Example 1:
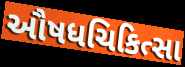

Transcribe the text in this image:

ઔષધચિકિત્સા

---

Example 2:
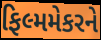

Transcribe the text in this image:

ફિલ્મમેકરને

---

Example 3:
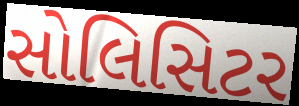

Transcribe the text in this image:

સોલિસિટર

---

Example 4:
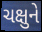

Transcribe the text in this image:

ચક્ષુને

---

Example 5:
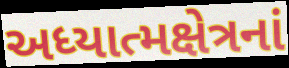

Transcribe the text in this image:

અધ્યાત્મક્ષેત્રનાં